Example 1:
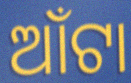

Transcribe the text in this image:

ଆଁଟା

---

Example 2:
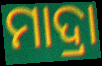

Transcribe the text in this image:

ମାଦ୍ରା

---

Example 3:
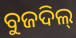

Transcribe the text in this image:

ବୁଜଦିଲ୍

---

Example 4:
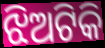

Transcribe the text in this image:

ଝିଅଟିକି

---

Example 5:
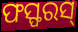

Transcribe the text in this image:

ଫସ୍ଫରସ୍